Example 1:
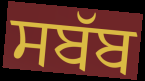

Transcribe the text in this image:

ਸਬੱਬ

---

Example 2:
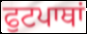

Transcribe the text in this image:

ਫੁਟਪਾਥਾਂ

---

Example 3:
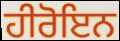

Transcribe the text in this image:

ਹੀਰੋਇਨ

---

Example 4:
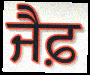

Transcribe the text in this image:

ਜੈਫ਼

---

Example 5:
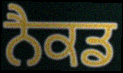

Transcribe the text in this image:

ਨੈਕਡ